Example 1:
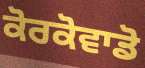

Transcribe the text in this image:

ਕੋਰਕੋਵਾਡੋ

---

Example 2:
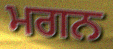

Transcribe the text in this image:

ਮਗਨ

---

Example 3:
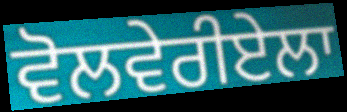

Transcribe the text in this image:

ਵੋਲਵੇਰੀਏਲਾ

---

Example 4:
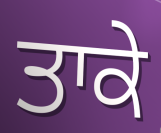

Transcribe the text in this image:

ਤਾਕੇ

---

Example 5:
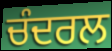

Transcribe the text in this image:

ਚੰਦਰਲ